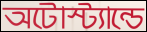
অটোস্ট্যান্ডে